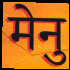
मेनु